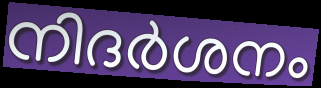
നിദർശനം